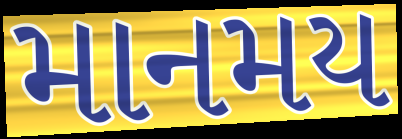
માનમય